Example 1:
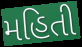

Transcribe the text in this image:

મહિતી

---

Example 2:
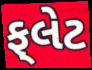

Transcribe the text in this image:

ફ્‌લેટ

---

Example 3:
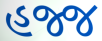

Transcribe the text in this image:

હજ્જ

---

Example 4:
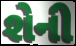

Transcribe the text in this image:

શેની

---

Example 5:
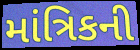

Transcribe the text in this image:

માંત્રિકની